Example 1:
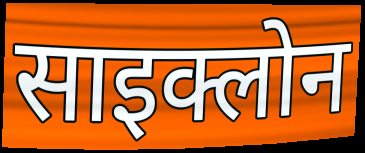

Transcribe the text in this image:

साइक्लोन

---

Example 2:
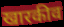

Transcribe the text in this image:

खारकीव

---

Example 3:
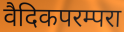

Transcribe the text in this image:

वैदिकपरम्परा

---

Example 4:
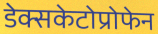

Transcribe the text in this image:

डेक्सकेटोप्रोफेन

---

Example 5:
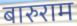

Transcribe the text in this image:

बारुराम